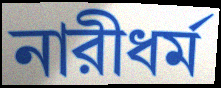
নারীধর্ম